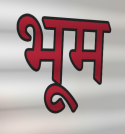
भूम